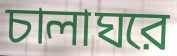
চালাঘরে